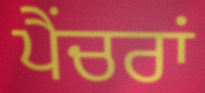
ਪੈਂਚਰਾਂ